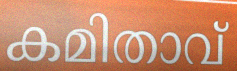
കമിതാവ്